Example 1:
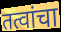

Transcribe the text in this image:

तत्वांचा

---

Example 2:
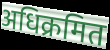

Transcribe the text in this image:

अधिक्रमित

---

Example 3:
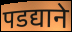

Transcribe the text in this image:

पडद्याने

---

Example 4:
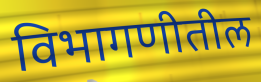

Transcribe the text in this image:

विभागणीतील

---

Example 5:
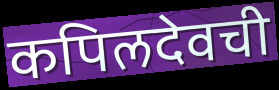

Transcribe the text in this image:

कपिलदेवची